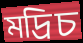
মদ্রিচ